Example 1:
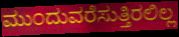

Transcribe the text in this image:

ಮುಂದುವರೆಸುತ್ತಿರಲಿಲ್ಲ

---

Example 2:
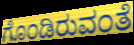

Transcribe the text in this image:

ಗೊಂಡಿರುವಂತೆ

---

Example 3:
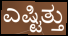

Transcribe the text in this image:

ಎಷ್ಟಿತ್ತು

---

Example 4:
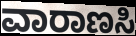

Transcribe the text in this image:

ವಾರಾಣಸಿ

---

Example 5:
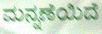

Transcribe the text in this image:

ಮನ್ನಣೆಯಿದೆ